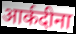
आर्कदीना